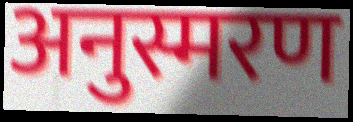
अनुस्मरण